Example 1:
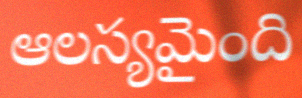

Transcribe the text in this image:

ఆలస్యమైంది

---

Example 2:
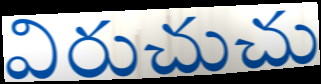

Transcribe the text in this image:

విరుచుచు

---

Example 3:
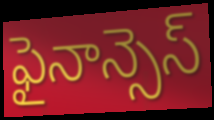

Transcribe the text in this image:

ఫైనాన్సెస్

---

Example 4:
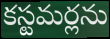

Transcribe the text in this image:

కస్టమర్లను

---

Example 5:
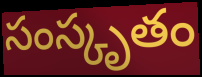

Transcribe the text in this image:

సంస్కృతం